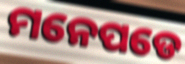
ମନେପଡେ